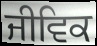
ਜੀਵਿਕ